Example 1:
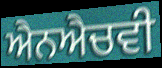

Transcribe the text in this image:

ਐਨਐਚਵੀ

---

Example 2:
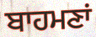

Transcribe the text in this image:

ਬਾਹਮਣਾਂ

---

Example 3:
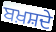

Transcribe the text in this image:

ਬਖ਼ਸ਼ਦੇ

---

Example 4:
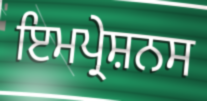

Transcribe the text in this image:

ਇਮਪ੍ਰੇਸ਼ਨਸ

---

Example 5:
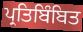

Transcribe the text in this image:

ਪ੍ਰਤਿਬਿੰਬਿਤ